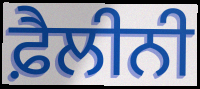
ਫ਼ੈਲੀਨੀ